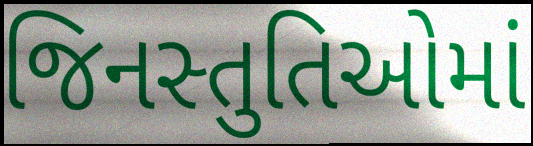
જિનસ્તુતિઓમાં